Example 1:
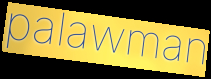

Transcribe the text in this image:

palawman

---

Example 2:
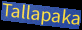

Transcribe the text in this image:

Tallapaka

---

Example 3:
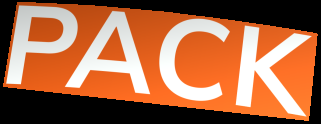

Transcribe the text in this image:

PACK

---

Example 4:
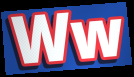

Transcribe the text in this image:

Ww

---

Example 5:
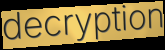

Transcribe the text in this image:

decryption